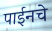
पाईनचे